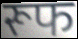
रूफ